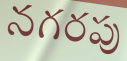
నగరపు